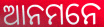
ଆନମନେ